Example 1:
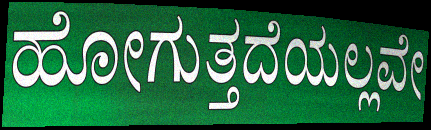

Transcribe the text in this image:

ಹೋಗುತ್ತದೆಯಲ್ಲವೇ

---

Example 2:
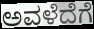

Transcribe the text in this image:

ಅವಳೆದೆಗೆ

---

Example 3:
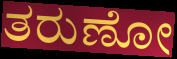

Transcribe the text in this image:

ತರುಣೋ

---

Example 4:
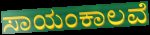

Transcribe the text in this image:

ಸಾಯಂಕಾಲವೆ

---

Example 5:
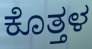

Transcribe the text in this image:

ಕೊತ್ತಳ